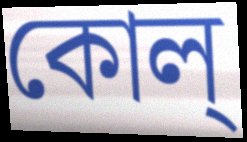
কোল্